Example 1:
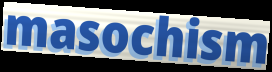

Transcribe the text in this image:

masochism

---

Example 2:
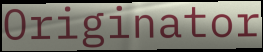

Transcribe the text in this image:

Originator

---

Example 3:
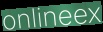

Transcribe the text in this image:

onlineex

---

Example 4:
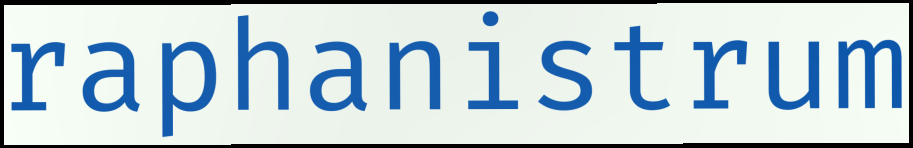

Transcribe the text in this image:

raphanistrum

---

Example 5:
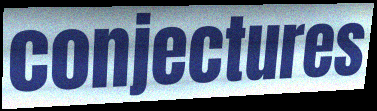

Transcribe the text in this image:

conjectures